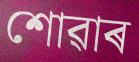
শোৱাৰ